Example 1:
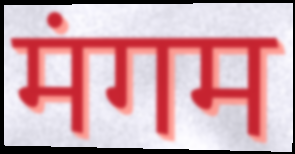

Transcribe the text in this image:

मंगम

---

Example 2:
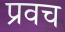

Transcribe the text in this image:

प्रवच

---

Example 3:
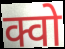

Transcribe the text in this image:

क्वो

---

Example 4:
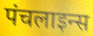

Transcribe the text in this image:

पंचलाइन्स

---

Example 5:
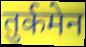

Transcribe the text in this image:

तुर्कमेन